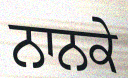
ਨਾਨਕੇ